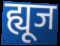
ह्यूज